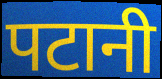
पटानी